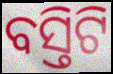
ବସ୍ତିଟି